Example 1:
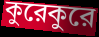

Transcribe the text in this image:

কুরেকুরে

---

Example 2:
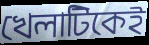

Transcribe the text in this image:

খেলাটিকেই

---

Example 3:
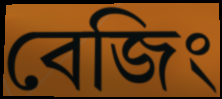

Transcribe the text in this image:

বেজিং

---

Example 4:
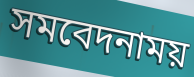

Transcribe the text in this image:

সমবেদনাময়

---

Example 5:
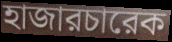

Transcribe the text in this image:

হাজারচারেক